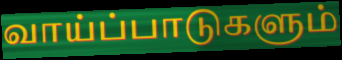
வாய்ப்பாடுகளும்